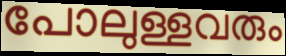
പോലുള്ളവരും